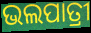
ଭଲପାତ୍ରୀ